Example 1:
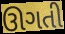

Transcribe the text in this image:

ઊગતી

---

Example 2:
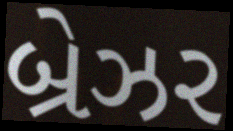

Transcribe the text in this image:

બ્રેઝર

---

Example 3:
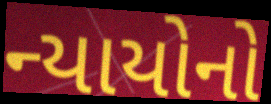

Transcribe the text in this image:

ન્યાયોનો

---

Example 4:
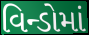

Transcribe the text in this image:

વિન્ડોમાં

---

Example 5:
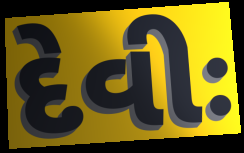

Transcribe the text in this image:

દેવીઃ